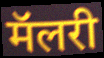
मॅलरी